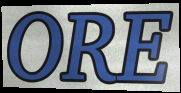
ORE